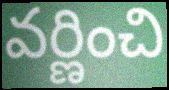
వర్ణించి